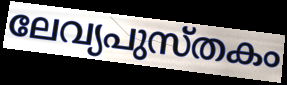
ലേവ്യപുസ്തകം